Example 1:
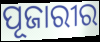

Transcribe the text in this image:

ପୂଜାରୀର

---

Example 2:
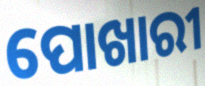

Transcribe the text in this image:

ପୋଖାରୀ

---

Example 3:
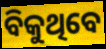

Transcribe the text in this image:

ବିକୁଥିବେ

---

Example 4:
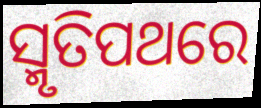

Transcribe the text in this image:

ସ୍ମୃତିପଥରେ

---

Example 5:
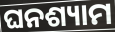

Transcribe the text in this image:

ଘନଶ୍ୟାମ